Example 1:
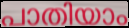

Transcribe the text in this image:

പാതിയാം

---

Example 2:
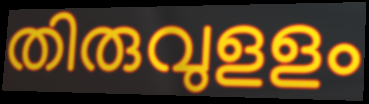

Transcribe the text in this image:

തിരുവുളളം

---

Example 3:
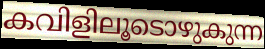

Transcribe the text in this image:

കവിളിലൂടൊഴുകുന്ന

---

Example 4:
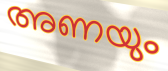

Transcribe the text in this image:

അണയും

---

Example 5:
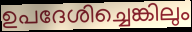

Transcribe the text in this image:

ഉപദേശിച്ചെങ്കിലും